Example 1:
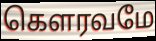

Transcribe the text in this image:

கௌரவமே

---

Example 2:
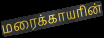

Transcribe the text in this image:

மரைக்காயரின்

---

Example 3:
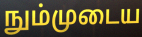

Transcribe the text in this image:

நும்முடைய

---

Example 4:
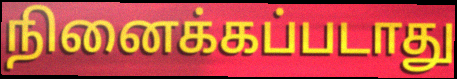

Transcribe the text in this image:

நினைக்கப்படாது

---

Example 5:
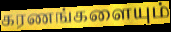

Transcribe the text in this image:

கரணங்களையும்